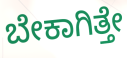
ಬೇಕಾಗಿತ್ತೇ